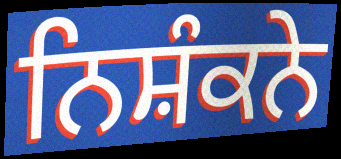
ਨਿਸ਼ੰਕਨੇ